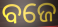
ବଜେ